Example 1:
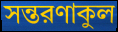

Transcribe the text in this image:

সন্তরণাকুল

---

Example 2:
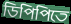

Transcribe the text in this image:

ডিপিপিতে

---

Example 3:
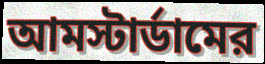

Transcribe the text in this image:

আমস্টার্ডামের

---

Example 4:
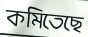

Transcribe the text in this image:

কমিতেছে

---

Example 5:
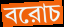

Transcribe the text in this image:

বরোচ